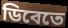
ডিবেতে